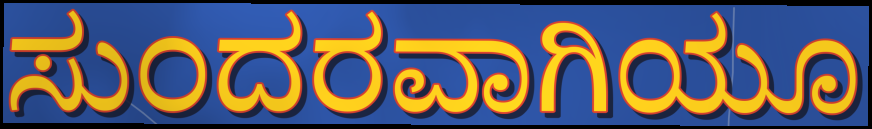
ಸುಂದರವಾಗಿಯೂ